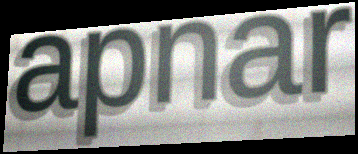
apnar